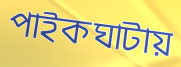
পাইকঘাটায়